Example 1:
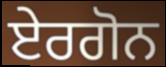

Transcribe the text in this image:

ਏਰਗੋਨ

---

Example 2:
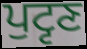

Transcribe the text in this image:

ਪੁਟ੍ਟਣ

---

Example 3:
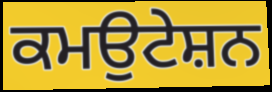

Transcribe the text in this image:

ਕਮਉਟੇਸ਼ਨ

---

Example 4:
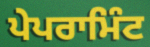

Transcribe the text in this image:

ਪੇਪਰਾਮਿੰਟ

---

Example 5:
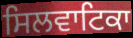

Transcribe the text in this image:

ਸਿਲਵਾਟਿਕਾ